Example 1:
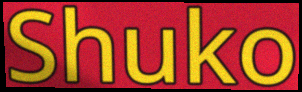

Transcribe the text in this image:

Shuko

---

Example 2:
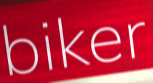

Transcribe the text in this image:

biker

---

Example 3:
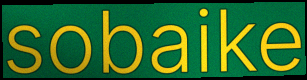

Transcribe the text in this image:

sobaike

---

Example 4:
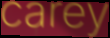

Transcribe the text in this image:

carey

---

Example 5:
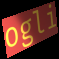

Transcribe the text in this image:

ogli